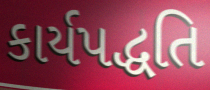
કાર્યપદ્ધતિ